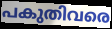
പകുതിവരെ